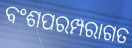
ବଂଶପରମ୍ପରାଗତ